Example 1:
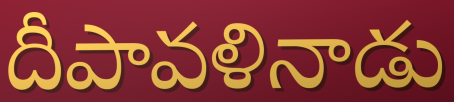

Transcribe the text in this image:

దీపావళినాడు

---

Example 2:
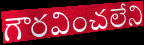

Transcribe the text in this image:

గౌరవించలేని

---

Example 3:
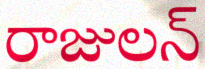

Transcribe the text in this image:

రాజులన్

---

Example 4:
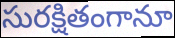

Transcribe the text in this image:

సురక్షితంగానూ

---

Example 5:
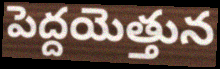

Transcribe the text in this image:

పెద్దయెత్తున